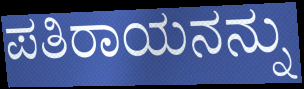
ಪತಿರಾಯನನ್ನು